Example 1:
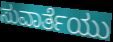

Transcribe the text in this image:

ಸುವಾರ್ತೆಯು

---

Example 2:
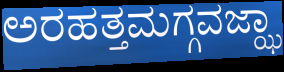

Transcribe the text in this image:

ಅರಹತ್ತಮಗ್ಗವಜ್ಝಾ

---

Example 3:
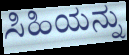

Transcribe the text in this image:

ಸಿಹಿಯನ್ನು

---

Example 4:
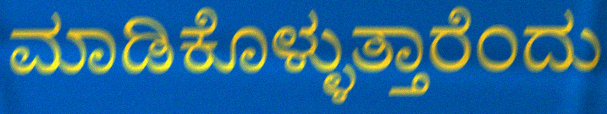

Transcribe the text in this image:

ಮಾಡಿಕೊಳ್ಳುತ್ತಾರೆಂದು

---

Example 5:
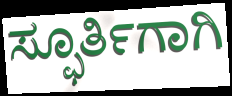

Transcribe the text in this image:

ಸ್ಫೂರ್ತಿಗಾಗಿ